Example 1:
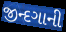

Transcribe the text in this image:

જીન્દગાની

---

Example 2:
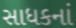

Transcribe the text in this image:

સાધકનાં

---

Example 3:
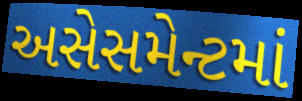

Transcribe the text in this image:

અસેસમેન્ટમાં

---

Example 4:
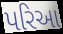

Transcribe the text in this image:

પરિઆ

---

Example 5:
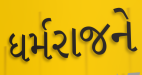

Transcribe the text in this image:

ધર્મરાજને